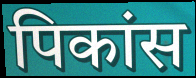
पिकांस